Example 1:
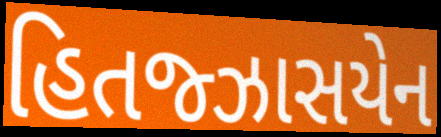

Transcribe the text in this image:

હિતજ્ઝાસયેન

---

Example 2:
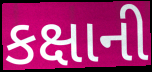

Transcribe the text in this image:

કક્ષાની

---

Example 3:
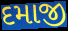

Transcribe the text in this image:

દમાજી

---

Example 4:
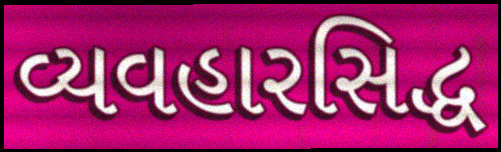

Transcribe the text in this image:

વ્યવહારસિદ્ધ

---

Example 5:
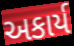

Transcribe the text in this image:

અકાર્ય